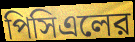
পিসিএলের